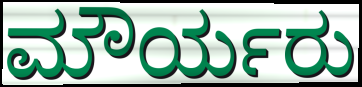
ಮೌರ್ಯರು